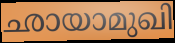
ഛായാമുഖി